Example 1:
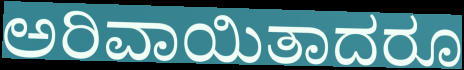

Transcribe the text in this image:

ಅರಿವಾಯಿತಾದರೂ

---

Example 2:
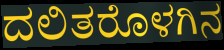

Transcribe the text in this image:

ದಲಿತರೊಳಗಿನ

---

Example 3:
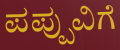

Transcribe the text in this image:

ಪಪ್ಪುವಿಗೆ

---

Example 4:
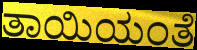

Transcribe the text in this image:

ತಾಯಿಯಂತೆ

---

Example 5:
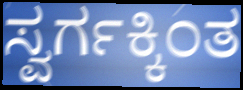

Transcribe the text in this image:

ಸ್ವರ್ಗಕ್ಕಿಂತ